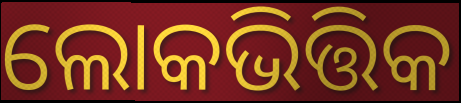
ଲୋକଭିତ୍ତିକ